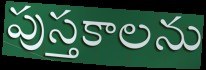
పుస్తకాలను